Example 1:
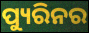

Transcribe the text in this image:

ପ୍ୟୁରିନର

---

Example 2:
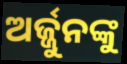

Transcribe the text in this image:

ଅର୍ଜ୍ଜୁନଙ୍କୁ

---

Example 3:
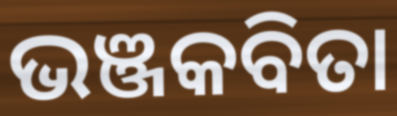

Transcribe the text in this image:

ଭଞ୍ଜକବିତା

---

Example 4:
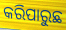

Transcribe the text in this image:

କରିପାରୁଛ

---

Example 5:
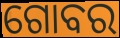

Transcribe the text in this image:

ଗୋବର